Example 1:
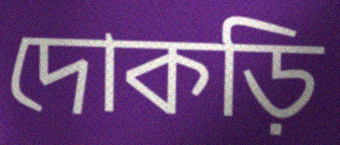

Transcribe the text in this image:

দোকড়ি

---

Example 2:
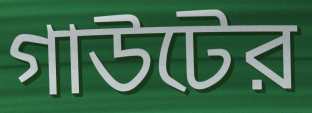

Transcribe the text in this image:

গাউটের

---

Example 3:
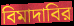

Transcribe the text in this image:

বিমাদাবির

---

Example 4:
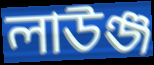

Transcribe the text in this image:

লাউঞ্জ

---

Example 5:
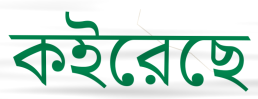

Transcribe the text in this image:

কইরেছে